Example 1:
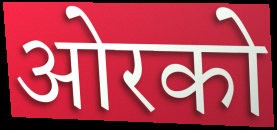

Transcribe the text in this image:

ओरको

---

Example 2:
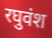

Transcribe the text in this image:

रघुवंश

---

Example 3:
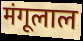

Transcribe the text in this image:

मंगूलाल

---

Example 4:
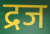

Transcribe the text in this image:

द्रज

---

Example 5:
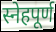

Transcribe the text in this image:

स्नेहपूर्ण